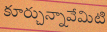
కూర్చున్నావేమిటి